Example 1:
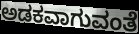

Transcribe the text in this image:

ಅಡಕವಾಗುವಂತೆ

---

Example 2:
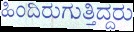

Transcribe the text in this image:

ಹಿಂದಿರುಗುತ್ತಿದ್ದರು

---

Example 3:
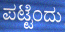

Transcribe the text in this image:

ಪಟ್ಟೆಂದು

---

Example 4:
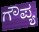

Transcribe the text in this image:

ಗೌಪ್ಯ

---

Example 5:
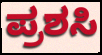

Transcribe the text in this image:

ಪ್ರಶಸಿ